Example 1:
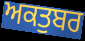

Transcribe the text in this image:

ਅਕਤੁਬਰ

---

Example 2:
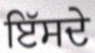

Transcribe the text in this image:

ਇੱਸਦੇ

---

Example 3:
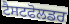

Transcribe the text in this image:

ਟੈਸਟਫੋਲਡਰ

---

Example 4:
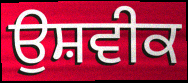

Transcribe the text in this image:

ਉਸ਼ਵੀਕ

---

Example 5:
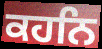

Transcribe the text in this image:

ਕਹਨਿ